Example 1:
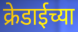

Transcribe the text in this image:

क्रेडाईच्या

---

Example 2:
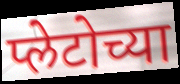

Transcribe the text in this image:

प्लेटोच्या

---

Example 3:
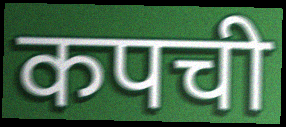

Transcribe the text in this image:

कपची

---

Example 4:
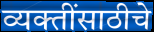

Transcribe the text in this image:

व्यक्तींसाठीचे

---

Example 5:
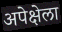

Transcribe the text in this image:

अपेक्षेला